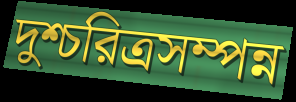
দুশ্চরিত্রসম্পন্ন